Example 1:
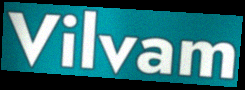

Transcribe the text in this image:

Vilvam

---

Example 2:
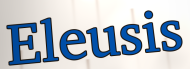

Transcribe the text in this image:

Eleusis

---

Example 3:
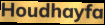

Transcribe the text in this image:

Houdhayfa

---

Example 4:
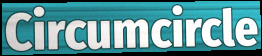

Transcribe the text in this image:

Circumcircle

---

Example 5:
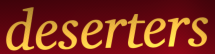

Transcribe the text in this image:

deserters